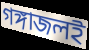
গঙ্গাজলই